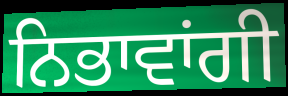
ਨਿਭਾਵਾਂਗੀ